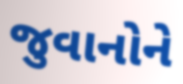
જુવાનોને